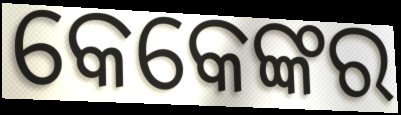
କେକେଙ୍କର